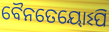
ବୈନତେୟୋଽପି